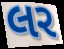
લર